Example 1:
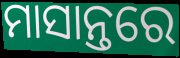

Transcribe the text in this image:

ମାସାନ୍ତରେ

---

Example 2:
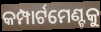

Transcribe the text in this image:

କମ୍ପାର୍ଟମେଣ୍ଟକୁ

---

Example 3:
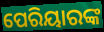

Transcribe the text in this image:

ପେରିୟାରଙ୍କ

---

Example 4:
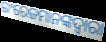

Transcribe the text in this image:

ଇଂରେଜମାନଙ୍କଦ୍ୱାରା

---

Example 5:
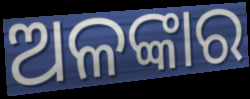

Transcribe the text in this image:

ଅଳଙ୍କାର